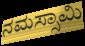
ನಮಸ್ಸಾಮಿ